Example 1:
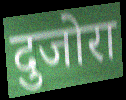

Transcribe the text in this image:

दुजोरा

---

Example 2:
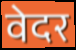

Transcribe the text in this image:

वेदर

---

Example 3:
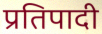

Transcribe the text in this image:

प्रतिपादी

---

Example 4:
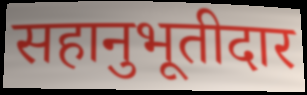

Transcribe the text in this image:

सहानुभूतीदार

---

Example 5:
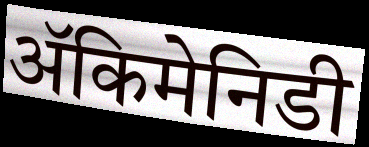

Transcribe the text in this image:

ॲकिमेनिडी